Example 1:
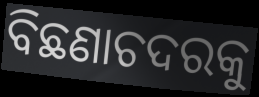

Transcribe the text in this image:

ବିଛଣାଚଦରକୁ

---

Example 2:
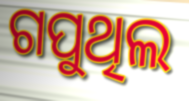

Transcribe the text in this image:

ଗପୁଥିଲ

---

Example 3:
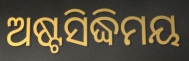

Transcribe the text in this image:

ଅଷ୍ଟସିଦ୍ଧିମୟ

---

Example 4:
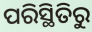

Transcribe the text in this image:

ପରିସ୍ଥିତିରୁ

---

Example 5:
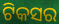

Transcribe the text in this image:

ଟିକସର